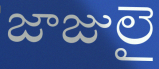
జాజులై